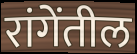
रांगेंतील